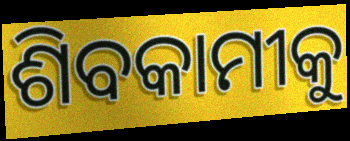
ଶିବକାମୀକୁ